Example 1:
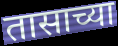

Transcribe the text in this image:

तासाच्या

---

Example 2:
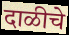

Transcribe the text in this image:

दाळीचे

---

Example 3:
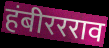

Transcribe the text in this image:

हंबीररराव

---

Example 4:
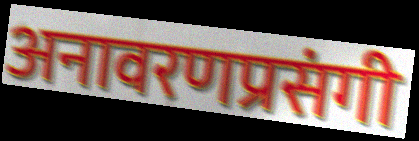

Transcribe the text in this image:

अनावरणप्रसंगी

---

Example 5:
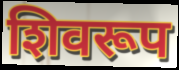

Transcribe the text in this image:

शिवरूप